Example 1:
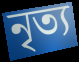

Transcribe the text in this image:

নৃত্য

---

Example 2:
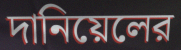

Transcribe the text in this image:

দানিয়েলের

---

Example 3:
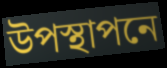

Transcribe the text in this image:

উপস্থাপনে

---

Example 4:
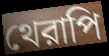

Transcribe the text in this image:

থেরাপি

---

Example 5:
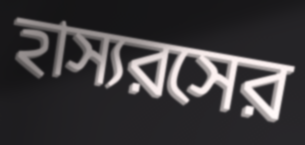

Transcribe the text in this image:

হাস্যরসের